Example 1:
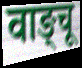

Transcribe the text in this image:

वाङ्चू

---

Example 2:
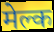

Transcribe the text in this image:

मेल्क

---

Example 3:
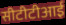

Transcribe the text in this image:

सीटीटीआई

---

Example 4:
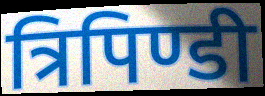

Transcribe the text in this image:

त्रिपिण्डी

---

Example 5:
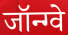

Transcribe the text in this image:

जॉन्ग्वे